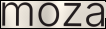
moza